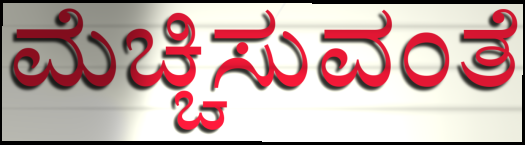
ಮೆಚ್ಚಿಸುವಂತೆ